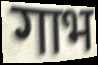
गाभ